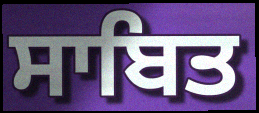
ਸਾਬਿਤ